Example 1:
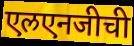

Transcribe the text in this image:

एलएनजीची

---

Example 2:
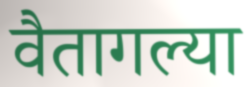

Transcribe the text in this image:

वैतागल्या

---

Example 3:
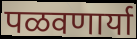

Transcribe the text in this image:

पळवणार्या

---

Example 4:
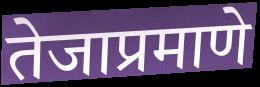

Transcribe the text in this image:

तेजाप्रमाणे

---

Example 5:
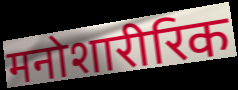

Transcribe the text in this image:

मनोशारीरिक